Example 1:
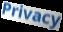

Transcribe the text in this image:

Privacy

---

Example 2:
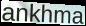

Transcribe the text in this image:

ankhma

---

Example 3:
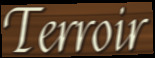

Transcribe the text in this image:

Terroir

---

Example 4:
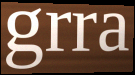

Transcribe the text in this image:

grra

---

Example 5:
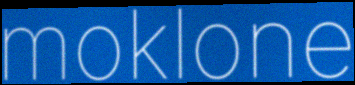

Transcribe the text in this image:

moklone